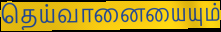
தெய்வானையையும்